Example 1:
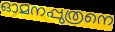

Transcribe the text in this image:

ഓമനപ്പുത്രനെ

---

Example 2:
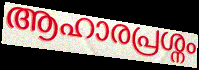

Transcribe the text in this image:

ആഹാരപ്രശ്നം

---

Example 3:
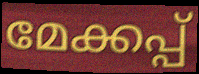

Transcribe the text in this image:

മേക്കപ്പ്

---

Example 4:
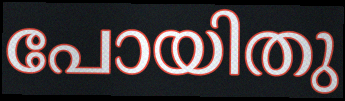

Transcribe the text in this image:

പോയിതു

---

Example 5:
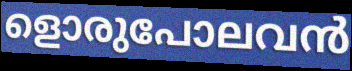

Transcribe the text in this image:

ളൊരുപോലവൻ